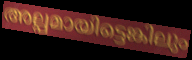
അല്പമായിട്ടെങ്കിലും